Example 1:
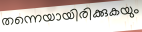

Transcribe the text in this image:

തന്നെയായിരിക്കുകയും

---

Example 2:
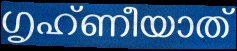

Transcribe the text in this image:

ഗൃഹ്ണീയാത്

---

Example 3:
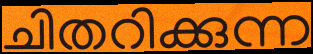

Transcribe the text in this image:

ചിതറിക്കുന്ന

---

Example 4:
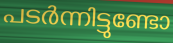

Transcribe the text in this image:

പടർന്നിട്ടുണ്ടോ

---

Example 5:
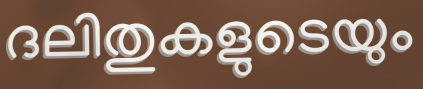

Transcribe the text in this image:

ദലിതുകളുടെയും